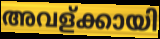
അവള്ക്കായി